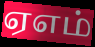
ஏஎம்